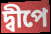
দ্বীপে